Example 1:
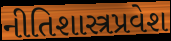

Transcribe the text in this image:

નીતિશાસ્ત્રપ્રવેશ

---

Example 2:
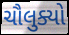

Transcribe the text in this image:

ચૌલુક્યો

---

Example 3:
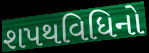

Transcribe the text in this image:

શપથવિધિનો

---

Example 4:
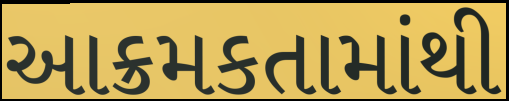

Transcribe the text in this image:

આક્રમકતામાંથી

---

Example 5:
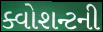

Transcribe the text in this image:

ક્વોશન્ટની